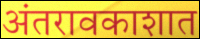
अंतरावकाशात